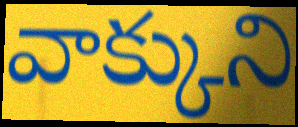
వాక్కుని